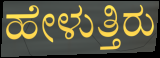
ಹೇಳುತ್ತಿರು